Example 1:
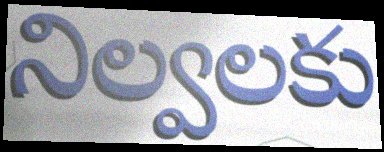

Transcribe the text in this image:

నిల్వలకు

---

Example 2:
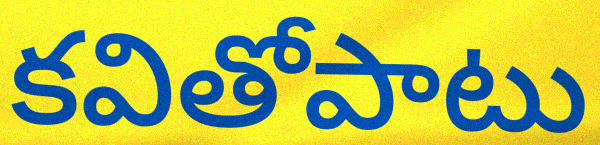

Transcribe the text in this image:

కవితోపాటు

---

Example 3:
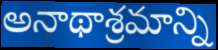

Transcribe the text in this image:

అనాథాశ్రమాన్ని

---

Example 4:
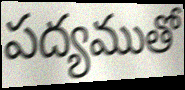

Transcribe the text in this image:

పద్యముతో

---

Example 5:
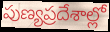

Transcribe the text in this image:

పుణ్యప్రదేశాల్లో